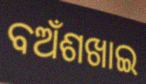
ବଅଁଶଖାଇ